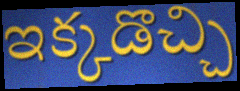
ఇక్కడొచ్చి